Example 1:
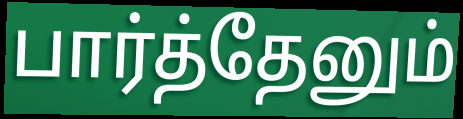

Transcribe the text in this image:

பார்த்தேனும்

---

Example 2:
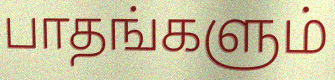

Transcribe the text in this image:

பாதங்களும்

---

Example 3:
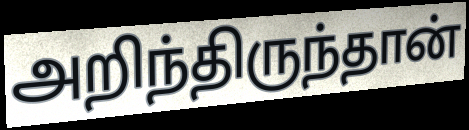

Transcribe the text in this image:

அறிந்திருந்தான்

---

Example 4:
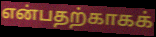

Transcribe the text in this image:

என்பதற்காகக்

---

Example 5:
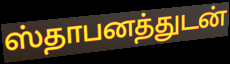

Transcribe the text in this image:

ஸ்தாபனத்துடன்